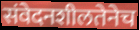
संवेदनशीलतेनेच